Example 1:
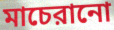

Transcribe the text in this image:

মাচেরানো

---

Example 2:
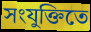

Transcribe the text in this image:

সংযুক্তিতে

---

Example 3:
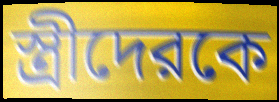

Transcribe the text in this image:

স্ত্রীদেরকে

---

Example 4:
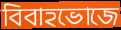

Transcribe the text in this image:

বিবাহভোজে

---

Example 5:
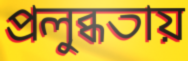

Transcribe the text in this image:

প্রলুব্ধতায়